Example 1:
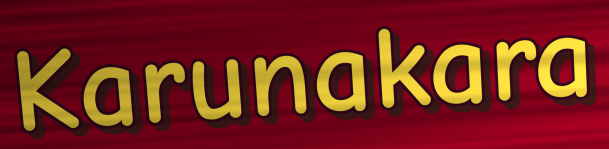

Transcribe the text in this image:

Karunakara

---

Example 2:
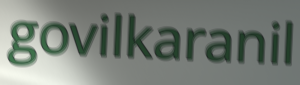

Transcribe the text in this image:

govilkaranil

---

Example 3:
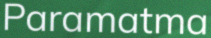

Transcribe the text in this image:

Paramatma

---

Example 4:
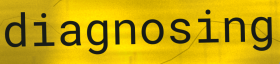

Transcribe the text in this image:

diagnosing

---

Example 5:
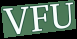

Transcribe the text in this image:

VFU